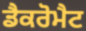
ਡੈਕਰੋਮੈਟ